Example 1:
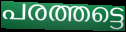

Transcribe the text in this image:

പരത്തട്ടെ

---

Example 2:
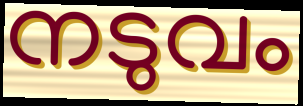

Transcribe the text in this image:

നടുവം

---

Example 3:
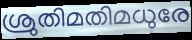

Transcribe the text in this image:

ശ്രുതിമതിമധുരേ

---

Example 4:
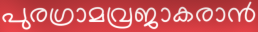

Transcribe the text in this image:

പുരഗ്രാമവ്രജാകരാൻ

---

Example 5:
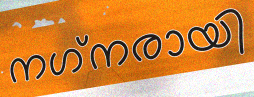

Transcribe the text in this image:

നഗ്‌നരായി